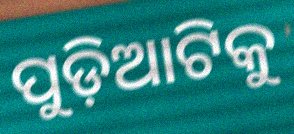
ପୁଡ଼ିଆଟିକୁ